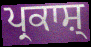
ਪ੍ਰਕਾਸ਼੍